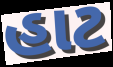
હાટ